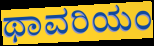
ಥಾವರಿಯಂ